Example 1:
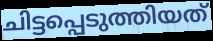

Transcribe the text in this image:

ചിട്ടപ്പെടുത്തിയത്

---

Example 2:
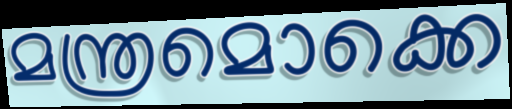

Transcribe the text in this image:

മന്ത്രമൊക്കെ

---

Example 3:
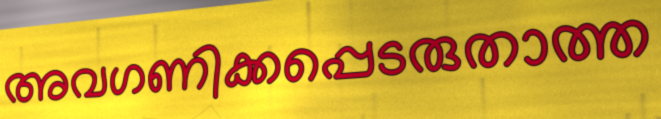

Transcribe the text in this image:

അവഗണിക്കപ്പെടരുതാത്ത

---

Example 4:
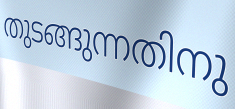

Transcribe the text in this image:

തുടങ്ങുന്നതിനു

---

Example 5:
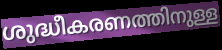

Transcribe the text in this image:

ശുദ്ധീകരണത്തിനുള്ള